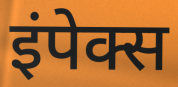
इंपेक्स